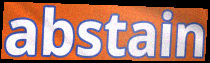
abstain